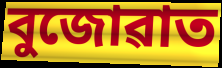
বুজোৱাত